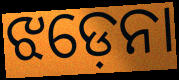
ଝଡ଼େନା